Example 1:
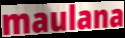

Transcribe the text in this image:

maulana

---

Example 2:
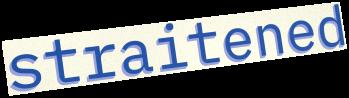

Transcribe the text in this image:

straitened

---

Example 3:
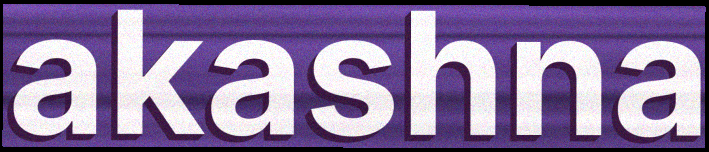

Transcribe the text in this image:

akashna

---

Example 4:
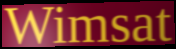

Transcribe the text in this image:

Wimsat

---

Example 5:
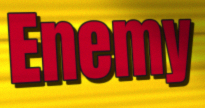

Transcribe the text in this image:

Enemy